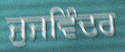
ਜੁਜਵਿੰਦਰ